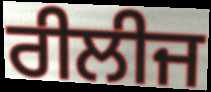
ਰੀਲੀਜ